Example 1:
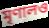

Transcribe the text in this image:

মৃণালও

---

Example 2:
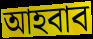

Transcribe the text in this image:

আহবাব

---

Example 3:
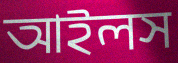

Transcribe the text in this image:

আইলস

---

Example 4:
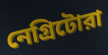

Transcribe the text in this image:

নেগ্রিটোরা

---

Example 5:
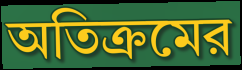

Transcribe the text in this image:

অতিক্রমের